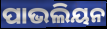
ପାଭଲିୟନ